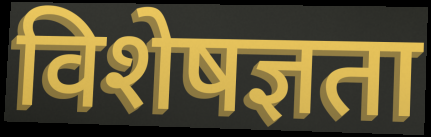
विशेषज्ञता